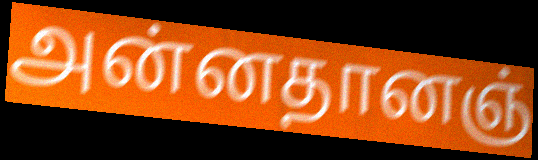
அன்னதானஞ்